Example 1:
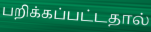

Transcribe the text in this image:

பறிக்கப்பட்டதால்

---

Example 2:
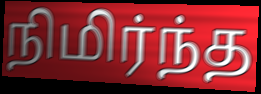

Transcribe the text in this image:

நிமிர்ந்த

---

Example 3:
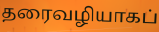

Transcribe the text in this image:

தரைவழியாகப்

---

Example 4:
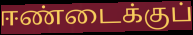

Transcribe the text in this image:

ஈண்டைக்குப்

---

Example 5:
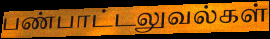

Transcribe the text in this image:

பண்பாட்டலுவல்கள்